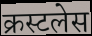
क्रस्टलेस